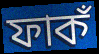
ফাকঁ